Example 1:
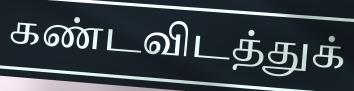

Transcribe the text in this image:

கண்டவிடத்துக்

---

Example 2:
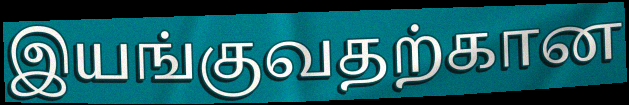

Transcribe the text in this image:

இயங்குவதற்கான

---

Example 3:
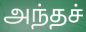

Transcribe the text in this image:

அந்தச்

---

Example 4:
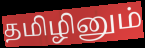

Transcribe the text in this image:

தமிழினும்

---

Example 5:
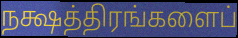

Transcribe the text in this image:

நக்ஷத்திரங்களைப்